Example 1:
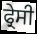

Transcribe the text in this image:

ਫ੍ਰੇਸੀ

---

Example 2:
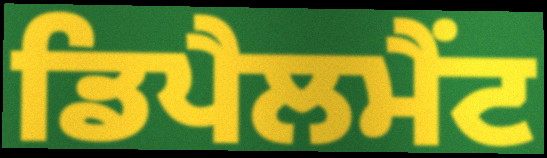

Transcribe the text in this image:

ਡਿਪੈਲਮੈਂਟ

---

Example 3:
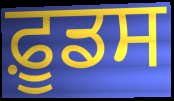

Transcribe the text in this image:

ਫ਼ੂਡਸ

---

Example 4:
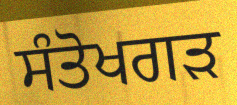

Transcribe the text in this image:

ਸੰਤੋਖਗੜ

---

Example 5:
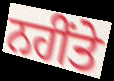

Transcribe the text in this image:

ਨਹੀਂਤੇ